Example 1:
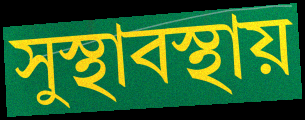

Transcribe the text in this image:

সুস্থাবস্থায়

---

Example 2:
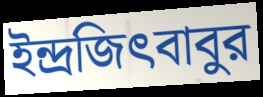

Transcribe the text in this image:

ইন্দ্রজিৎবাবুর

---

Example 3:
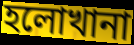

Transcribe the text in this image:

হলোখানা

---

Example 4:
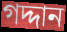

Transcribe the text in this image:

গদ্দান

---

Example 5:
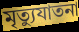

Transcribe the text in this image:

মৃত্যুযাতনা